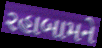
રહાબામને